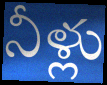
నీళ్లు